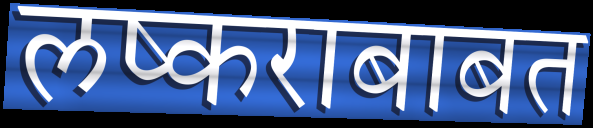
लष्कराबाबत